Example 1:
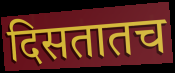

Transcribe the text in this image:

दिसतातच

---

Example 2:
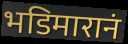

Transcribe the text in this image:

भडिमारानं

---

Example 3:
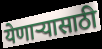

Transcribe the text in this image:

येणाऱ्यासाठी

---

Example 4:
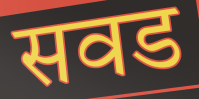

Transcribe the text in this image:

सवड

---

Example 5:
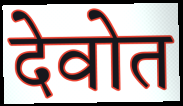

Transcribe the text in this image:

देवोत